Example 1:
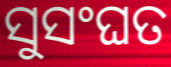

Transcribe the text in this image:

ସୁସଂଘତ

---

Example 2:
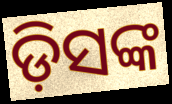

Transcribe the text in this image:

ଡ଼ିସଙ୍କ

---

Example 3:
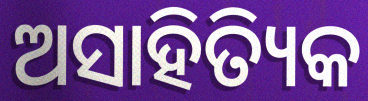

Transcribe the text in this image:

ଅସାହିତ୍ୟିକ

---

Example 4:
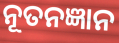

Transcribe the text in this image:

ନୂତନଜ୍ଞାନ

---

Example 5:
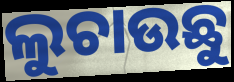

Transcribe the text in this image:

ଲୁଚାଉଛୁ